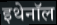
इथेनॉल